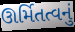
ઊર્મિતત્વનું